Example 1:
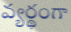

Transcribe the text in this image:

వ్యర్థంగా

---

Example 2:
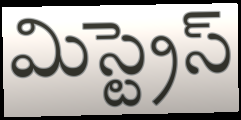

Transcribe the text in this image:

మిస్ట్రెస్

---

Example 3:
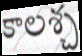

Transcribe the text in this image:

కాలశ్చ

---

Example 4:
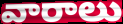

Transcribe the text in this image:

వారాలు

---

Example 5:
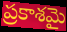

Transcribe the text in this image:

ప్రకాశమై